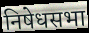
निषेधसभा